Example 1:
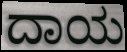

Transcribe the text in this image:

ದಾಯ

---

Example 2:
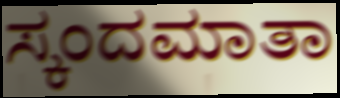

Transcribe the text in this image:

ಸ್ಕಂದಮಾತಾ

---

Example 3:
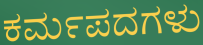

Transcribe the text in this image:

ಕರ್ಮಪದಗಳು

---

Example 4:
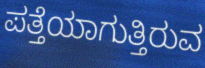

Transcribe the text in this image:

ಪತ್ತೆಯಾಗುತ್ತಿರುವ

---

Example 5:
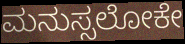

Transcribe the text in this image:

ಮನುಸ್ಸಲೋಕೇ